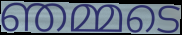
ഞമ്മടെ